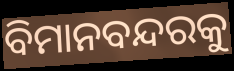
ବିମାନବନ୍ଦରକୁ